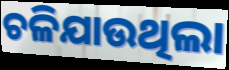
ଚଳିଯାଉଥିଲା